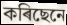
কৰিছেনে